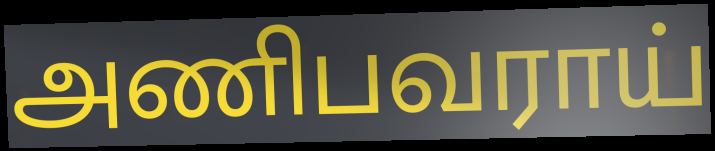
அணிபவராய்